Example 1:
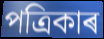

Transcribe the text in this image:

পত্ৰিকাৰ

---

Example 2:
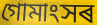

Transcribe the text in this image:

গোমাংসৰ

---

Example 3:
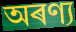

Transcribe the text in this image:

অৰণ্য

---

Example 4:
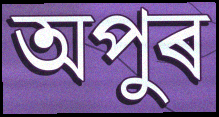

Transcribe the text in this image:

অপুৰ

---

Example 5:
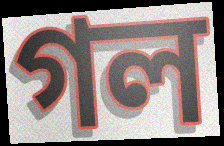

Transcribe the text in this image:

গল